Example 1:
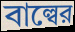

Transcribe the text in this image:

বাল্বের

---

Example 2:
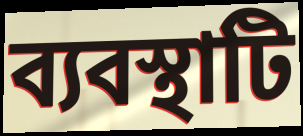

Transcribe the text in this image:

ব্যবস্থাটি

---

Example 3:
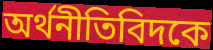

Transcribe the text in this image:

অর্থনীতিবিদকে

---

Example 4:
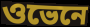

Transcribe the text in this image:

ওভেনে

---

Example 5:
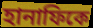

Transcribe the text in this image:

হানাফিকে